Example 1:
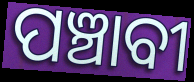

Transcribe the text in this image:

ପଞ୍ଚାବୀ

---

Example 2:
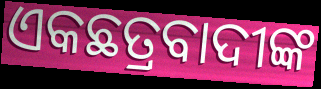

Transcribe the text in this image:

ଏକଛତ୍ରବାଦୀଙ୍କ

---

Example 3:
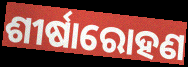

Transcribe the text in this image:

ଶୀର୍ଷାରୋହଣ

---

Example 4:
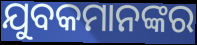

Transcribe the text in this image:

ଯୁବକମାନଙ୍କର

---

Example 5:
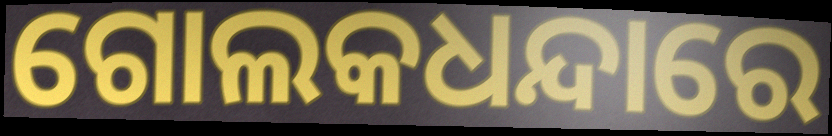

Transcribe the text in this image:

ଗୋଲକଧନ୍ଦାରେ